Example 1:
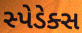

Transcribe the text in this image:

સ્પેડેક્સ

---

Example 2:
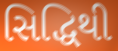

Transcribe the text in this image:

સિદ્ધિથી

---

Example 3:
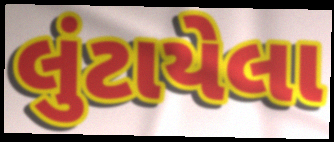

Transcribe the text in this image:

લુંટાયેલા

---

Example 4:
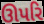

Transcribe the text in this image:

ઊપરિ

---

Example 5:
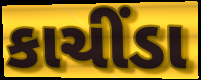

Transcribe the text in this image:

કાચીંડા